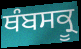
ਥੰਬਸਕ੍ਰੂ